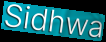
Sidhwa